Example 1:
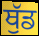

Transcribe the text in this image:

ਥੁੱਡ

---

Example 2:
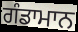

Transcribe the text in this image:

ਗੰਡਾਮਾਨ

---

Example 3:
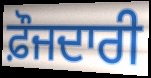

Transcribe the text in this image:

ਫ਼ੌਜਦਾਰੀ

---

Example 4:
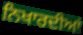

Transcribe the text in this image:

ਨਿਖਾਰਦੀਆਂ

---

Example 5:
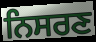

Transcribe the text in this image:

ਨਿਸਰਣ